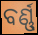
ବର୍ଣ୍ଣ୍